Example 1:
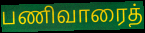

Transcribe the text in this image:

பணிவாரைத்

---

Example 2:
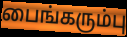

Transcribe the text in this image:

பைங்கரும்பு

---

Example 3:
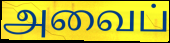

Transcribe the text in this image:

அவைப்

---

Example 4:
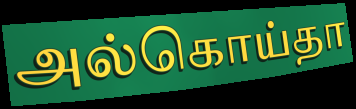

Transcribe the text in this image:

அல்கொய்தா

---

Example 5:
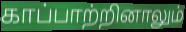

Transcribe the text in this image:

காப்பாற்றினாலும்